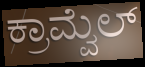
ಕ್ರಾಮ್ವೆಲ್